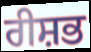
ਰੀਸ਼ਭ